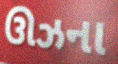
ઊઝના